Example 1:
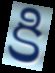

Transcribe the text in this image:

కి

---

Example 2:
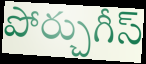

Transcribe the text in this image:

పోర్చుగీస్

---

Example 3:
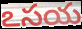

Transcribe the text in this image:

ఽసయ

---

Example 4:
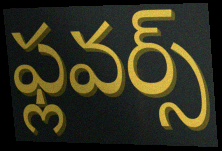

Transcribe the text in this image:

ఫ్లవర్స్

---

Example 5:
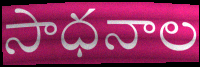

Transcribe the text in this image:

సాధనాల